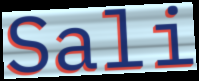
Sali